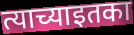
त्याच्याइतका